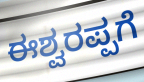
ಈಶ್ವರಪ್ಪಗೆ